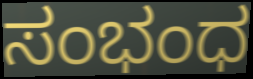
ಸಂಭಂಧ